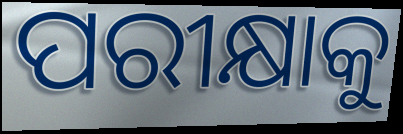
ପରୀକ୍ଷାକୁ